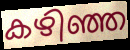
കഴിഞ്ഞ